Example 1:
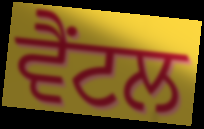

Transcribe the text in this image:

ਵੈਂਟਲ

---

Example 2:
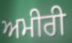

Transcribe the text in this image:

ਅਮੀਰੀ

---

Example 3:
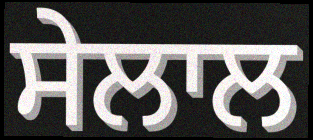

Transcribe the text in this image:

ਸੇਲਾਲ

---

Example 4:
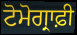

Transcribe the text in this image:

ਟੋਮੋਗ੍ਰਾਫ਼ੀ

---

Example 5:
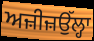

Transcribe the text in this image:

ਅਜ਼ੀਜ਼ਉੱਲ੍ਹਾ